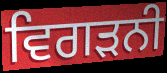
ਵਿਗੜਨੀ